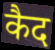
कैद